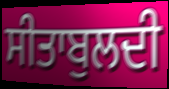
ਸੀਤਾਬੁਲਦੀ